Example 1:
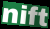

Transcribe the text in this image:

nift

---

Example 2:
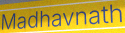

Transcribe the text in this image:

Madhavnath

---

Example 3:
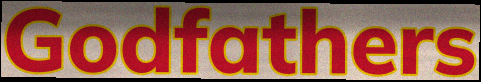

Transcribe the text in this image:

Godfathers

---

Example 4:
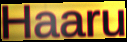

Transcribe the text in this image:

Haaru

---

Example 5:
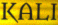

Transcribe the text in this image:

KALI